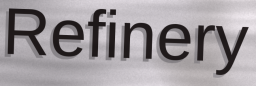
Refinery